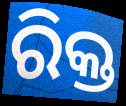
ରିକ୍ତ